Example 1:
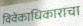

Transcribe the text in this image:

विवेकाधिकाराचा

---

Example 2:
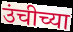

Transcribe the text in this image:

उंचीच्या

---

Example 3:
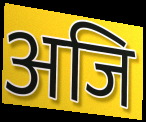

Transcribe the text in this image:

अजि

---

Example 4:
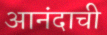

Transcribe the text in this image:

आनंदाची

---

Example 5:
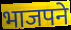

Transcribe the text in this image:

भाजपने